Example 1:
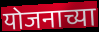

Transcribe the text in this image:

योजनाच्या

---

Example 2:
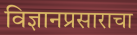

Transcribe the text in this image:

विज्ञानप्रसाराचा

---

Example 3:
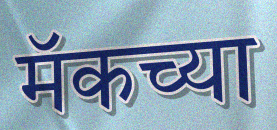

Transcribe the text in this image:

मॅकच्या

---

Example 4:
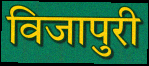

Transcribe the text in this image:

विजापुरी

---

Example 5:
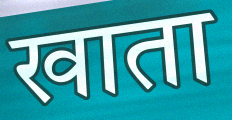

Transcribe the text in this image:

खाता